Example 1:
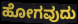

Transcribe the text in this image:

ಹೋಗವುದು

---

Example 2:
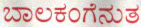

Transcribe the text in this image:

ಬಾಲಕಂಗೆನುತ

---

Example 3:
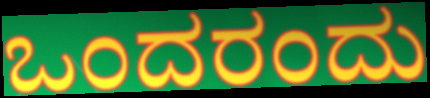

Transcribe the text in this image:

ಒಂದರಂದು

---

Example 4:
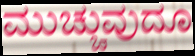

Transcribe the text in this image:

ಮುಚ್ಚುವುದೂ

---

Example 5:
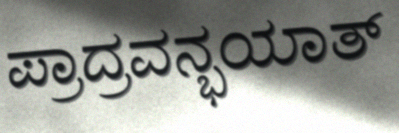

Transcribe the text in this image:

ಪ್ರಾದ್ರವನ್ಭಯಾತ್